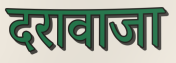
दरावाजा